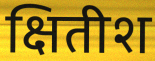
क्षितीश